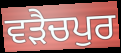
ਵੜੈਚਪੁਰ